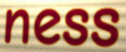
ness